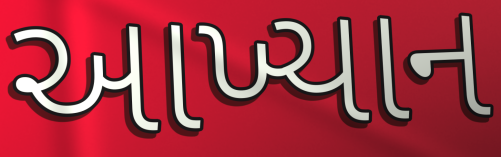
આખ્યાન